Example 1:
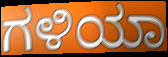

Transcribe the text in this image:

ಗಳಿಯಾ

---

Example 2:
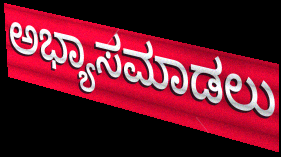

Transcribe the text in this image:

ಅಭ್ಯಾಸಮಾಡಲು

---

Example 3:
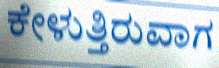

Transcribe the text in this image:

ಕೇಳುತ್ತಿರುವಾಗ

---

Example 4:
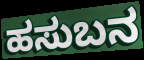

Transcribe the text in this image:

ಹಸುಬನ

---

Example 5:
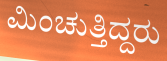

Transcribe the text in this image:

ಮಿಂಚುತ್ತಿದ್ದರು